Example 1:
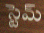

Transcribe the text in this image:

స్టెమ్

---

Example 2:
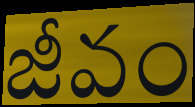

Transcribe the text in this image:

జీవం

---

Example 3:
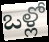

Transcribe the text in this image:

ఒళ్లో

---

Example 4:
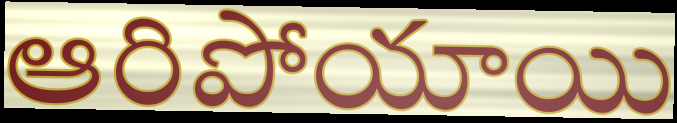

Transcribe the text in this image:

ఆరిపోయాయి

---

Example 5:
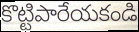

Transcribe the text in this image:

కొట్టిపారేయకండి